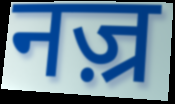
नज़्र